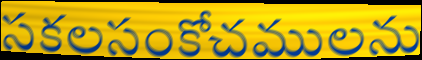
సకలసంకోచములను